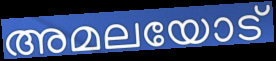
അമലയോട്